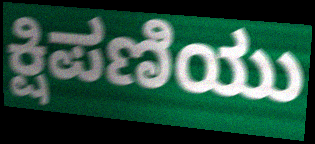
ಕ್ಷಿಪಣಿಯು